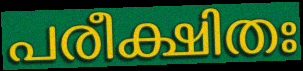
പരീക്ഷിതഃ